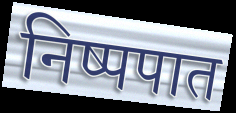
निष्पपात